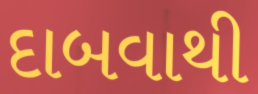
દાબવાથી